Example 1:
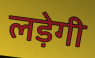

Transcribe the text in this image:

लड़ेगी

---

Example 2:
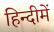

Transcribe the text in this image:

हिन्दीमें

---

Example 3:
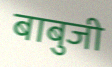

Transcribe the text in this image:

बाबुजी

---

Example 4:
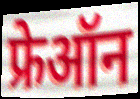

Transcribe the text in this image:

फ्रेऑन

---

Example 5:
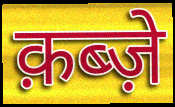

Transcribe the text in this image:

क़ब्ज़े